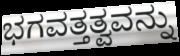
ಭಗವತ್ತತ್ವವನ್ನು